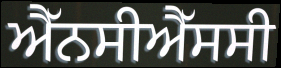
ਐੱਨਸੀਐੱਸਸੀ